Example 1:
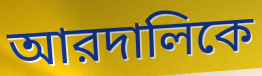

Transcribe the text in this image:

আরদালিকে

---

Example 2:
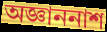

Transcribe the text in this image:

অজ্ঞাননাশ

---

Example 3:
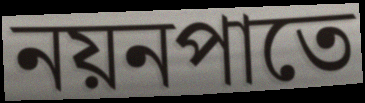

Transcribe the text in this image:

নয়নপাতে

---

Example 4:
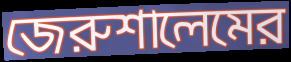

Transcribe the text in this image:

জেরুশালেমের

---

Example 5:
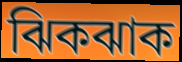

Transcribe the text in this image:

ঝিকঝাক